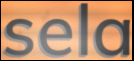
sela